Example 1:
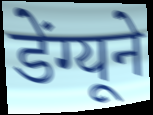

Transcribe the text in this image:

डेंग्यूने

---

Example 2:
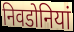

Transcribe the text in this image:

निवडोनियां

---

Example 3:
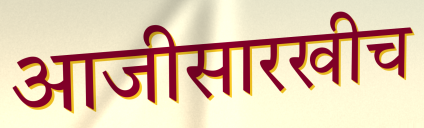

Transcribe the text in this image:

आजीसारखीच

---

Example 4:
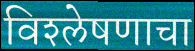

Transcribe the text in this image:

विश्लेषणाचा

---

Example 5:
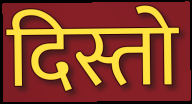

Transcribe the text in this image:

दिस्तो